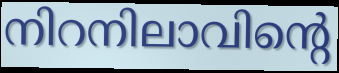
നിറനിലാവിന്റെ